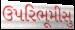
ઉપરિભૂમીસુ